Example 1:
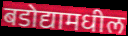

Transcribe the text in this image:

बडोद्यामधील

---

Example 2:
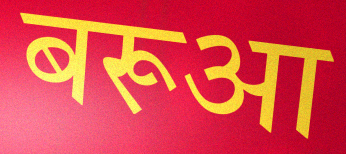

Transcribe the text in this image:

बरूआ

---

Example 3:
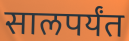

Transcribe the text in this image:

सालपर्यंत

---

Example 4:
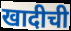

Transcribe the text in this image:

खादीची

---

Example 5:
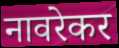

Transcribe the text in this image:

नावरेकर